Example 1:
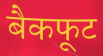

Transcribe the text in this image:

बैकफूट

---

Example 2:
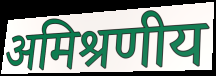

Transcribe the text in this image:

अमिश्रणीय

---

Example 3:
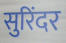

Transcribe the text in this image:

सुरिंदर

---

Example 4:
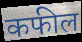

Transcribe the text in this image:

कफील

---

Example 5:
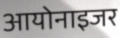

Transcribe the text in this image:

आयोनाइजर